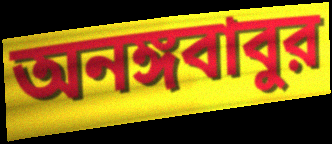
অনঙ্গবাবুর